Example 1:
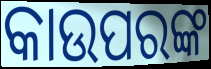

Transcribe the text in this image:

କାଉପରଙ୍କ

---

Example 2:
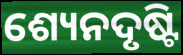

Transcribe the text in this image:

ଶ୍ୟେନଦୃଷ୍ଟି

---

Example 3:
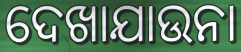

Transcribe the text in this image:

ଦେଖାଯାଉନା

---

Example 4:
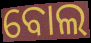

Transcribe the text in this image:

ବୋଲ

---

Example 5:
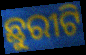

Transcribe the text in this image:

ଛୁରୀଟି